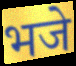
भजे